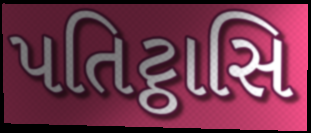
પતિટ્ઠાસિ